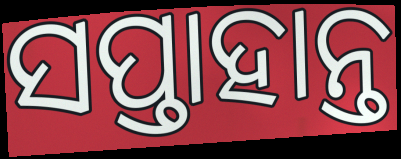
ସପ୍ତାହାନ୍ତ